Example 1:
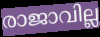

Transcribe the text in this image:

രാജാവില്ല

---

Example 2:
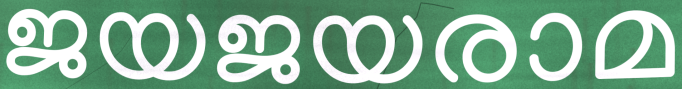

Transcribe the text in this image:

ജയജയരാമ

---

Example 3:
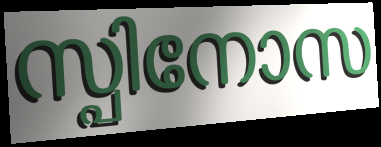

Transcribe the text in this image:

സ്പിനോസ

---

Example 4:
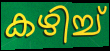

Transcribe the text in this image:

കഴിച്ച്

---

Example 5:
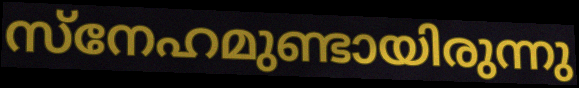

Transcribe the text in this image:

സ്നേഹമുണ്ടായിരുന്നു